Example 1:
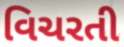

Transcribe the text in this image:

વિચરતી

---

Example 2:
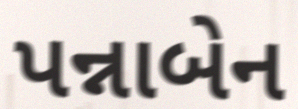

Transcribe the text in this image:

પન્નાબેન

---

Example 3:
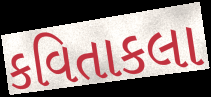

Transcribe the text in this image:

કવિતાકલા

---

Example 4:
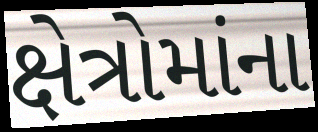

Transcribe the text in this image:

ક્ષેત્રોમાંના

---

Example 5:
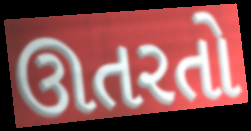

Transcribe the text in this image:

ઊતરતો